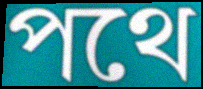
পথে